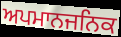
ਅਪਮਾਨਜਨਿਕ